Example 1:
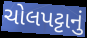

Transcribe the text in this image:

ચોલપટ્ટાનું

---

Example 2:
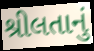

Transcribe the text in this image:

શ્રીલતાનું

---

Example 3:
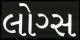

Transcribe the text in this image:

લોગ્સ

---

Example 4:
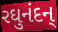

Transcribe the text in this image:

રઘુનંદન્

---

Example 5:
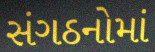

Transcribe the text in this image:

સંગઠનોમાં